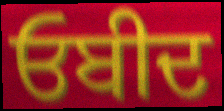
ਓਬੀਦ